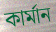
কার্মান